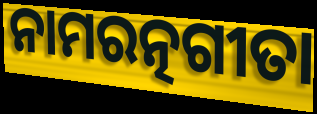
ନାମରତ୍ନଗୀତା